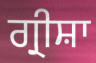
ਗ੍ਰੀਸ਼ਾ